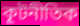
কূটনীতিক